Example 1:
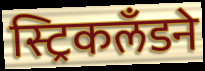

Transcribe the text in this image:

स्ट्रिकलँडने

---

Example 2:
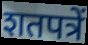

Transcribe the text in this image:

शतपत्रें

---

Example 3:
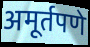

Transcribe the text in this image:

अमूर्तपणे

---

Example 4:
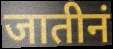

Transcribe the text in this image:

जातीनं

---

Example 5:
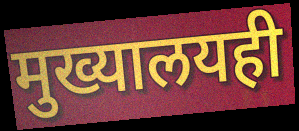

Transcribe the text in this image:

मुख्यालयही